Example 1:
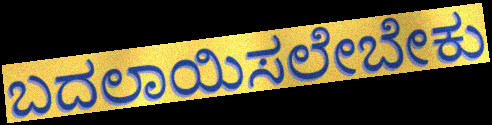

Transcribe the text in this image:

ಬದಲಾಯಿಸಲೇಬೇಕು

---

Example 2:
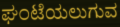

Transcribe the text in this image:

ಘಂಟೆಯಲುಗುವ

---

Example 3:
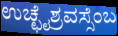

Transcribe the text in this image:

ಉಚ್ಛೈಶ್ರವಸ್ಸೆಂಬ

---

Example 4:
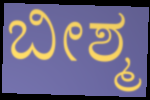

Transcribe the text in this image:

ಬೀಶ್ಮ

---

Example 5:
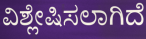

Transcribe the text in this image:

ವಿಶ್ಲೇಷಿಸಲಾಗಿದೆ